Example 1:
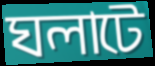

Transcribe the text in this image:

ঘলাটে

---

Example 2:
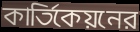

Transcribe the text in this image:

কার্তিকেয়নের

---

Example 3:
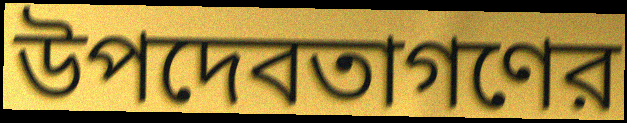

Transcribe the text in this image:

উপদেবতাগণের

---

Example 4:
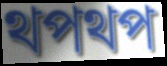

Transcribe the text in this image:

থপথপ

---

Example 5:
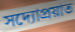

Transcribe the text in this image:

সদ্যোপ্রয়াত